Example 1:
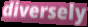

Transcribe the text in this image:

diversely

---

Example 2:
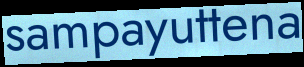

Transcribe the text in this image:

sampayuttena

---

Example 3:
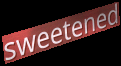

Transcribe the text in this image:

sweetened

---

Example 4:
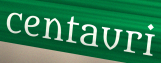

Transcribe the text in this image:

centauri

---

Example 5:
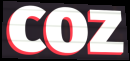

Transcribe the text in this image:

coz